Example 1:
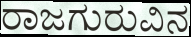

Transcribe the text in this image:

ರಾಜಗುರುವಿನ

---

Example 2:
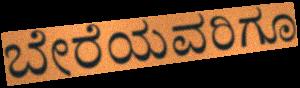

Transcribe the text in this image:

ಬೇರೆಯವರಿಗೂ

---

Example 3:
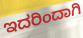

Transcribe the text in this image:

ಇದರಿಂದಾಗಿ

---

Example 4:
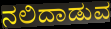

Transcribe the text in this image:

ನಲಿದಾಡುವ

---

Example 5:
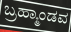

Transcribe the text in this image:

ಬ್ರಹ್ಮಾಂಡವ